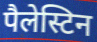
पैलेस्टिन